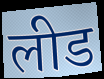
लीड